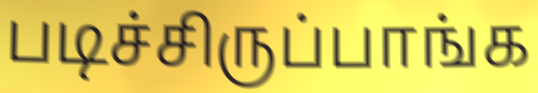
படிச்சிருப்பாங்க